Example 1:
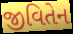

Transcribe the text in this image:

જીવિતેન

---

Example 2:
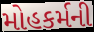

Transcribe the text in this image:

મોહકર્મની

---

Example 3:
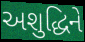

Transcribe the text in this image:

અશુદ્ધિને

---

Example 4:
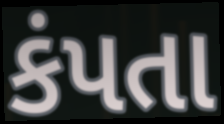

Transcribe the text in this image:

કંપતા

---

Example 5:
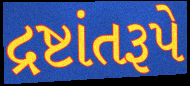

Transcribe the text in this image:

દ્રષ્ટાંતરૂપે